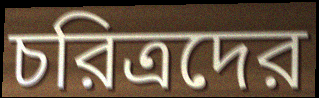
চরিত্রদের